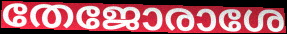
തേജോരാശേ